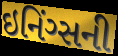
ઇનિંગ્સની